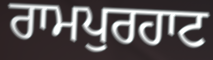
ਰਾਮਪੁਰਹਾਟ